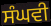
ਸੰਘਵੀ